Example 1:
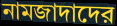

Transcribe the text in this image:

নামজাদাদের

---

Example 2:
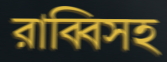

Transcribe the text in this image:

রাব্বিসহ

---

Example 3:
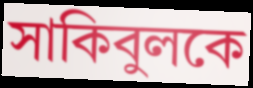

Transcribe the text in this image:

সাকিবুলকে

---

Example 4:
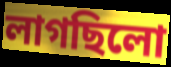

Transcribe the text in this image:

লাগছিলো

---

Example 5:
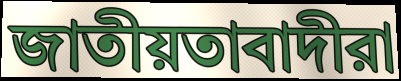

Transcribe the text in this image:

জাতীয়তাবাদীরা